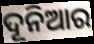
ଦୂନିଆର